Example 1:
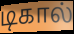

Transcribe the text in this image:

டிகால்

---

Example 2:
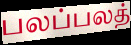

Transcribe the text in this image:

பலப்பலத்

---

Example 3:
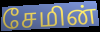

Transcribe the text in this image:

சேமின்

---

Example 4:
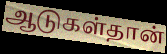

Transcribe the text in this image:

ஆடுகள்தான்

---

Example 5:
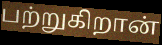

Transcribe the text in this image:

பற்றுகிறான்